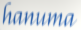
hanuma